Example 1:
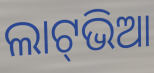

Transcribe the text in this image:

ଲାଟ୍‍ଭିଆ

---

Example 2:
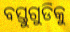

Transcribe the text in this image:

ବସ୍ତୁଗୁଡିକୁ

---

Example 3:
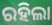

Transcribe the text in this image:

ରହିଲା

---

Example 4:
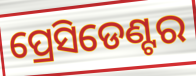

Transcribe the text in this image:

ପ୍ରେସିଡେଣ୍ଟର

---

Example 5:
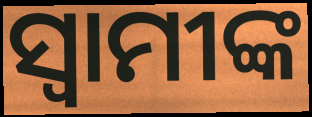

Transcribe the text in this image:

ସ୍ବାମୀଙ୍କ